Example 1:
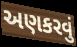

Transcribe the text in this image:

અણકરવું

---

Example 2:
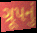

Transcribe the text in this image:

ગ્રૂપનું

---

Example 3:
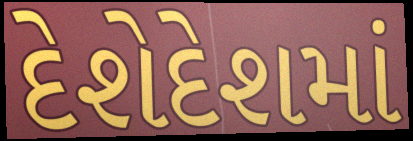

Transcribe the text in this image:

દેશેદેશમાં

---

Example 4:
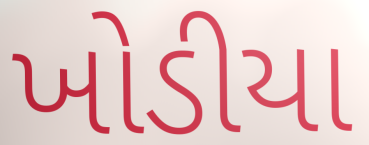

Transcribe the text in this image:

ખોડીયા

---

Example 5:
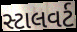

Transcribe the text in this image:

સ્ટાલવર્ટ